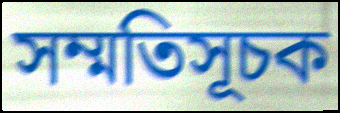
সম্মতিসূচক